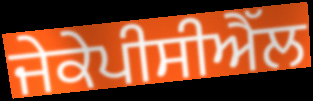
ਜੇਕੇਪੀਸੀਐੱਲ